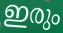
ഇരും